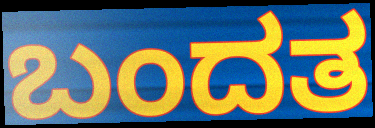
ಬಂದತ